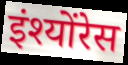
इंश्योंरेस